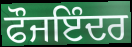
ਫੌਜਇੰਦਰ